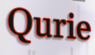
Qurie